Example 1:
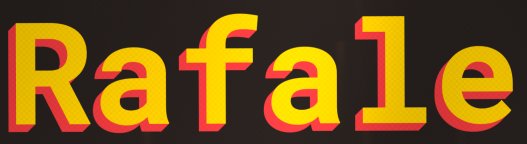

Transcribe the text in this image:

Rafale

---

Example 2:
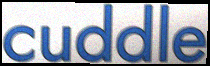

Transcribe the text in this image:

cuddle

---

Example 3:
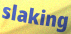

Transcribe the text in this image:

slaking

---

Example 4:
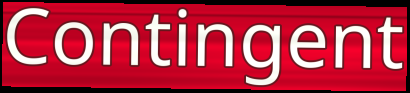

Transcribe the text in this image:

Contingent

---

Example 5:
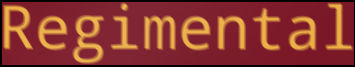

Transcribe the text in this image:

Regimental